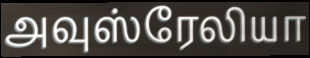
அவுஸ்ரேலியா